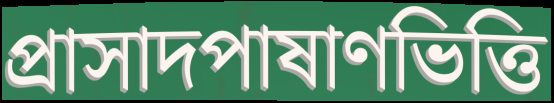
প্রাসাদপাষাণভিত্তি